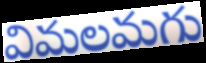
విమలమగు